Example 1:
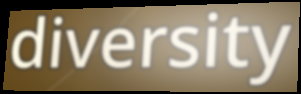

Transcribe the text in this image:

diversity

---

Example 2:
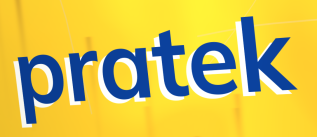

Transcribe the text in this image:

pratek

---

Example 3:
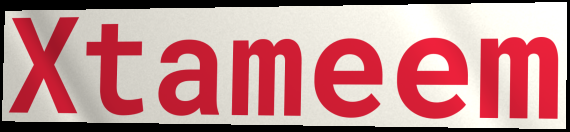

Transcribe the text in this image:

Xtameem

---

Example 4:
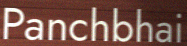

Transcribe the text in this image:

Panchbhai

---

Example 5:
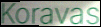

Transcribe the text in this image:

Koravas